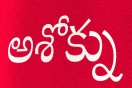
అశోక్ను